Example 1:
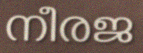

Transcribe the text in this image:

നീരജ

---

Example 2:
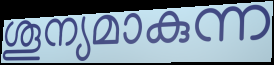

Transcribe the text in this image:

ശൂന്യമാകുന്ന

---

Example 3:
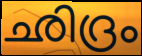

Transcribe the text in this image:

ഛിദ്രം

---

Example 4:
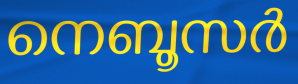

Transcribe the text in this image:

നെബൂസർ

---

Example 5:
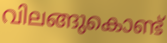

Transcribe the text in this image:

വിലങ്ങുകൊണ്ട്